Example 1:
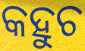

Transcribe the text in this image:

କହୁଚ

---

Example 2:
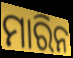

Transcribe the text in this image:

ମାରିନ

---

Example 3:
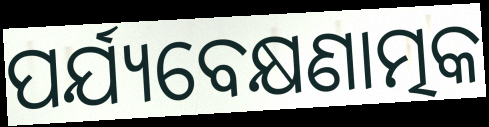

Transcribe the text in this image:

ପର୍ଯ୍ୟବେକ୍ଷଣାତ୍ମକ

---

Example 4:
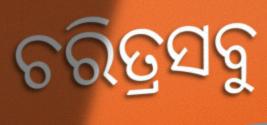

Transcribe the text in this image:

ଚରିତ୍ରସବୁ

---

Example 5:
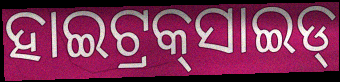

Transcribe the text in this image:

ହାଇଟ୍ରକ୍‌ସାଇଡ୍